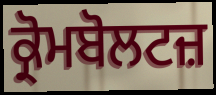
ਕ੍ਰੋਮਬੋਲਟਜ਼